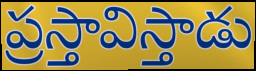
ప్రస్తావిస్తాడు